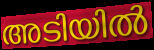
അടിയിൽ